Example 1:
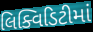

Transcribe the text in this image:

લિક્વિડિટીમાં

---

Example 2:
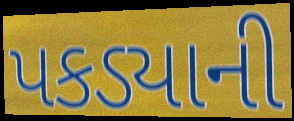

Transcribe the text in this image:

પકડ્યાની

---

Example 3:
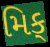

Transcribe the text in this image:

મિક્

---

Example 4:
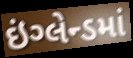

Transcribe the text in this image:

ઇંગ્લેન્ડમાં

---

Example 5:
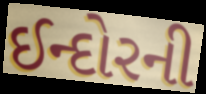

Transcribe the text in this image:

ઈન્દોરની